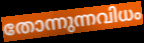
തോന്നുന്നവിധം